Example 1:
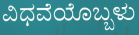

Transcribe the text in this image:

ವಿಧವೆಯೊಬ್ಬಳು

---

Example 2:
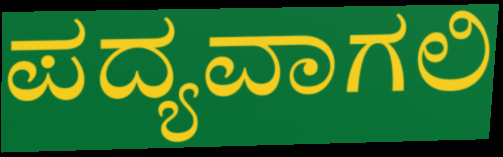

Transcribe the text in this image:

ಪದ್ಯವಾಗಲಿ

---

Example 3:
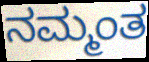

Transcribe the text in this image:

ನಮ್ಮಂತ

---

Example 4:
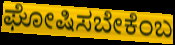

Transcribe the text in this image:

ಘೋಷಿಸಬೇಕೆಂಬ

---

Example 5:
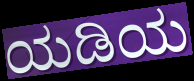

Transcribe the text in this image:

ಯಡಿಯ